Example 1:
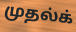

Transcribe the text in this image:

முதல்க்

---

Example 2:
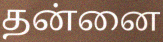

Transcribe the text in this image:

தன்னை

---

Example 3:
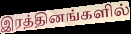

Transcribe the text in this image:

இரத்தினங்களில்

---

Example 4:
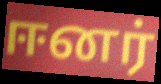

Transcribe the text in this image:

ஈனர்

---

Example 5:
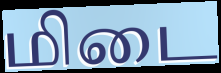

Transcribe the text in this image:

மிடை